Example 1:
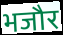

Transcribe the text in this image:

भजौर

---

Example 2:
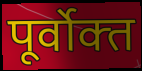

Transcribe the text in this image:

पूर्वोक्‍त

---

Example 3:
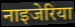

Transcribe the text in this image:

नाइजेरिया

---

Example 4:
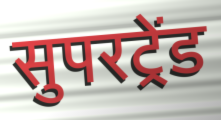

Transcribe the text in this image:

सुपरट्रेंड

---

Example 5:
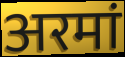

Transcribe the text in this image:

अरमां